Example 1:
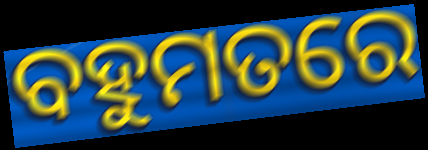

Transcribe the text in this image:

ବହୁମତରେ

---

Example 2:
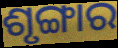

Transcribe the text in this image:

ଶୃଙ୍ଗାର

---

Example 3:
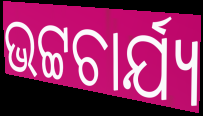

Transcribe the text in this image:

ଭଟ୍ଟଚାର୍ଯ୍ୟ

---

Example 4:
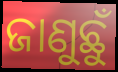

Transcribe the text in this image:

ଜାଣୁଛୁଁ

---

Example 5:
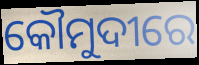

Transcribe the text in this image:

କୌମୁଦୀରେ